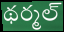
థర్మల్